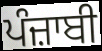
ਪੰਜ਼ਾਬੀ